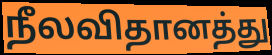
நீலவிதானத்து